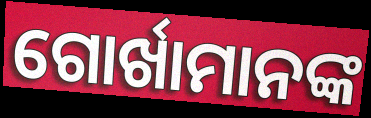
ଗୋର୍ଖାମାନଙ୍କ